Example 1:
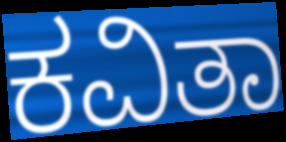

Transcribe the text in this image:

ಕವಿತಾ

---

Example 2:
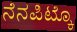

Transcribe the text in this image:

ನೆನಪಿಟ್ಕೊ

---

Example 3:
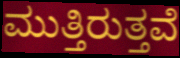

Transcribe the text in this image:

ಮುತ್ತಿರುತ್ತವೆ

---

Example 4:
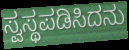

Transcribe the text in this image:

ಸ್ವಸ್ಥಪಡಿಸಿದನು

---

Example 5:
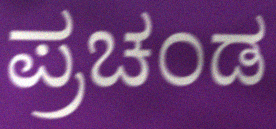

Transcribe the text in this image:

ಪ್ರಚಂಡ